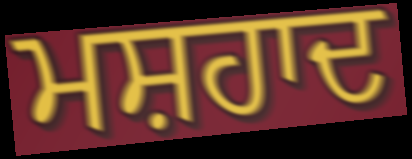
ਮਸ਼ਹਾਦ